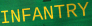
INFANTRY